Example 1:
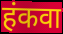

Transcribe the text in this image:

हंकवा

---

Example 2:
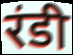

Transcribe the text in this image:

रंडी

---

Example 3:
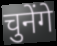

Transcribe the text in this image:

चुनेंगे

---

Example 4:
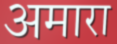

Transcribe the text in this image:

अमारा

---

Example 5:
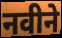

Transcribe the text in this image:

नवीने